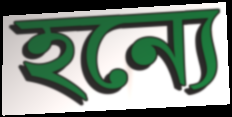
হন্যে